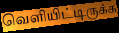
வெளியிட்டிருக்க